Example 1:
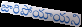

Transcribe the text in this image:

జారిపోయాయని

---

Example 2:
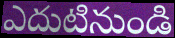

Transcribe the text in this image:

ఎదుటినుండి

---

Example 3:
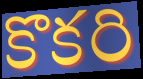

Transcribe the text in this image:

కొకరి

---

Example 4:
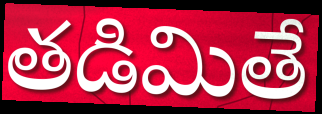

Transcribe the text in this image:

తడిమితే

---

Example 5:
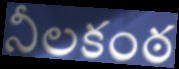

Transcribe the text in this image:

నీలకంఠ